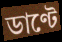
ডাণ্টে